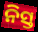
ନିସ୍ତ